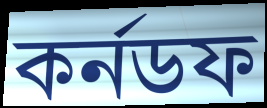
কর্নডফ